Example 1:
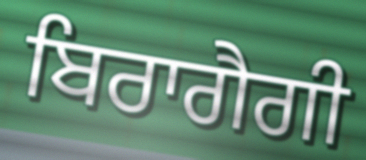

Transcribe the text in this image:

ਬਿਰਾਗੈਗੀ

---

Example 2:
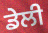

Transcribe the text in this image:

ਡੇਲੀ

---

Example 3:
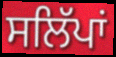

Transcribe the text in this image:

ਸਲਿੱਪਾਂ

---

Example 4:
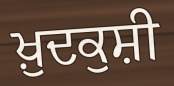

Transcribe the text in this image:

ਖ਼ੁਦਕੁਸ਼ੀ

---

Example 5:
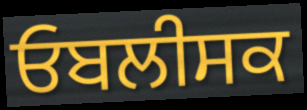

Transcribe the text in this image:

ਓਬਲੀਸਕ